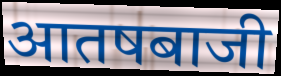
आतषबाजी